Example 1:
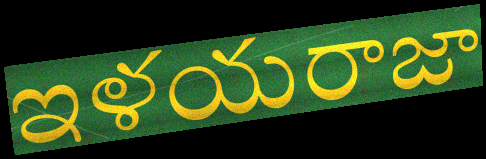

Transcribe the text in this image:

ఇళయరాజా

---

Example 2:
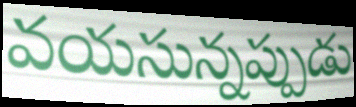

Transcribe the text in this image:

వయసున్నప్పుడు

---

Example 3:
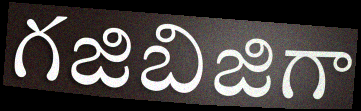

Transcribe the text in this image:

గజిబిజిగా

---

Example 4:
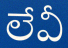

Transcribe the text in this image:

లేవీ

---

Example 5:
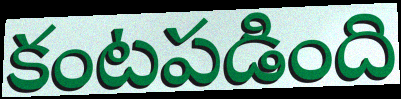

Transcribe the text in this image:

కంటపడింది